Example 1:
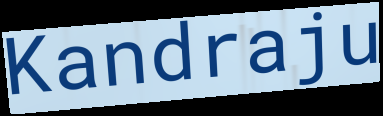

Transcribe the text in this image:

Kandraju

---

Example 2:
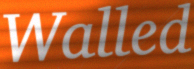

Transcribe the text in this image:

Walled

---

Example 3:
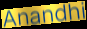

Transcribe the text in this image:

Anandhi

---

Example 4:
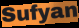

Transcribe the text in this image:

Sufyan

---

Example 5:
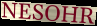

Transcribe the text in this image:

NESOHR